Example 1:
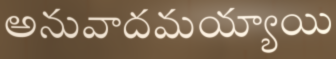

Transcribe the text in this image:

అనువాదమయ్యాయి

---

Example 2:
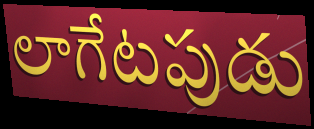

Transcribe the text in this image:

లాగేటపుడు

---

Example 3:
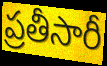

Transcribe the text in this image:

ప్రతీసారీ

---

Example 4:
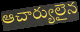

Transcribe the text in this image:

ఆచార్యులైన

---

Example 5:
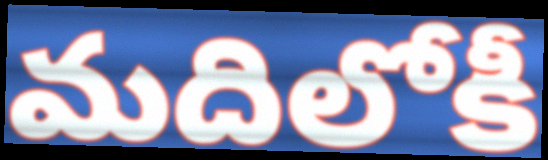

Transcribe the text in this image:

మదిలోకీ